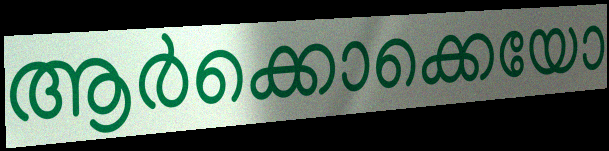
ആർക്കൊക്കെയോ